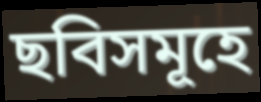
ছবিসমূহে